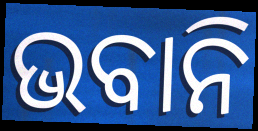
ଭବାନି